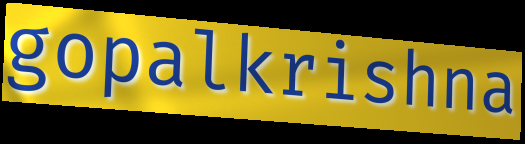
gopalkrishna